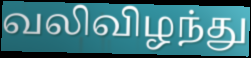
வலிவிழந்து